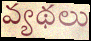
వ్యథలు